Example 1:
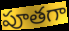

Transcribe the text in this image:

పూతగా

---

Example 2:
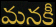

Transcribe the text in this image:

మనకీ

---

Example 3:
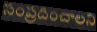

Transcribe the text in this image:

సంప్రదించాలని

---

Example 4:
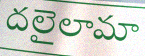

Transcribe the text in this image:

దలైలామా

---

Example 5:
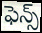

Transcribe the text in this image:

ఫెన్స్